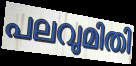
പലവുമിതി